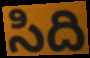
సిది